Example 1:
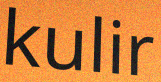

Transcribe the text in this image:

kulir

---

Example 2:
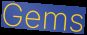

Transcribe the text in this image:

Gems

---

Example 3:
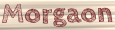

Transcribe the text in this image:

Morgaon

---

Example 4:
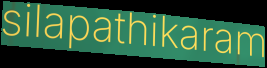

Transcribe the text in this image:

silapathikaram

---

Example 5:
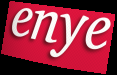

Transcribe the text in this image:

enye